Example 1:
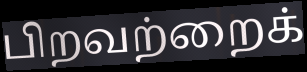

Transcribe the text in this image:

பிறவற்றைக்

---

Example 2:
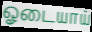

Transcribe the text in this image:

ஓடையாய்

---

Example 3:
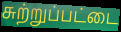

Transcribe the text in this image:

சுற்றுப்பட்டை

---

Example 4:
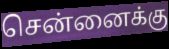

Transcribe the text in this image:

சென்னைக்கு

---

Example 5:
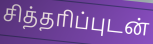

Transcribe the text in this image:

சித்தரிப்புடன்